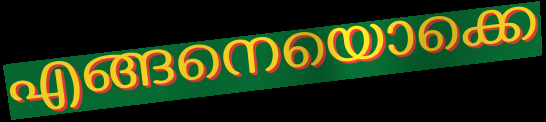
എങ്ങനെയൊക്കെ